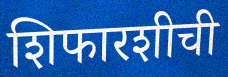
शिफारशीची